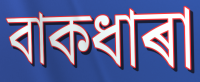
বাকধাৰা